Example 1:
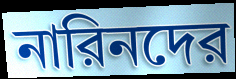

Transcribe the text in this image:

নারিনদের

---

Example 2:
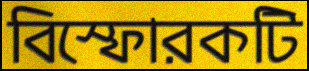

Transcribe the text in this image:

বিস্ফোরকটি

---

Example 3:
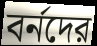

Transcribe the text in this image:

বর্নদের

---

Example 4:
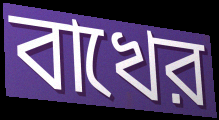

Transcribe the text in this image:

বাখের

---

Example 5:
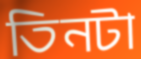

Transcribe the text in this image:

তিনটা